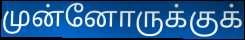
முன்னோருக்குக்